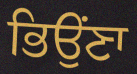
ਭਿਉਂਣਾ